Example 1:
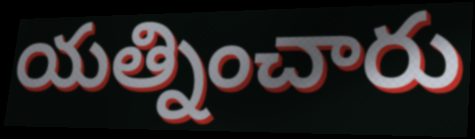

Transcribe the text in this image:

యత్నించారు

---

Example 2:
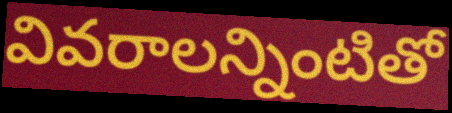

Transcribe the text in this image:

వివరాలన్నింటితో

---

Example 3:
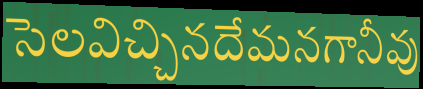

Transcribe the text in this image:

సెలవిచ్చినదేమనగానీవు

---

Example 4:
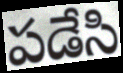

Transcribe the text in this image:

పడేసి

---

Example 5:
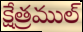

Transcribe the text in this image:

క్షేత్రముల్